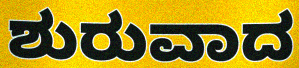
ಶುರುವಾದ